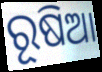
ରୂଷିଆ